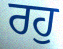
ਰਹੁ